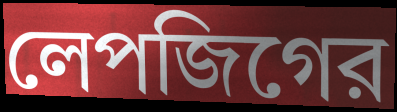
লেপজিগের